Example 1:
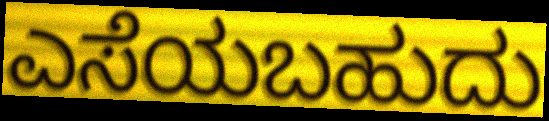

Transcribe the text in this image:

ಎಸೆಯಬಹುದು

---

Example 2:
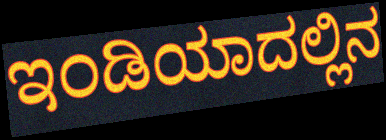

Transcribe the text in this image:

ಇಂಡಿಯಾದಲ್ಲಿನ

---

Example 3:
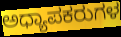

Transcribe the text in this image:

ಅಧ್ಯಾಪಕರುಗಳ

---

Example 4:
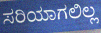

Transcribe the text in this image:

ಸರಿಯಾಗಲಿಲ್ಲ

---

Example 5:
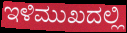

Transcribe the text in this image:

ಇಳಿಮುಖದಲ್ಲಿ